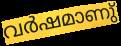
വർഷമാണു്